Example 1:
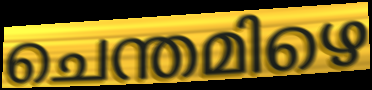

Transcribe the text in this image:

ചെന്തമിഴെ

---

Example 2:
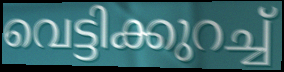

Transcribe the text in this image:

വെട്ടിക്കുറച്ച്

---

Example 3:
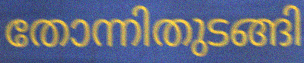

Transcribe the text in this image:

തോന്നിതുടങ്ങി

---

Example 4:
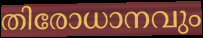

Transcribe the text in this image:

തിരോധാനവും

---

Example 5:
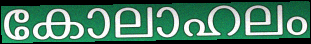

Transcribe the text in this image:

കോലാഹലം